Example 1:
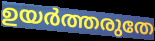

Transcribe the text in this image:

ഉയർത്തരുതേ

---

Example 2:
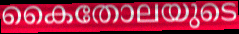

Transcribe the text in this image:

കൈതോലയുടെ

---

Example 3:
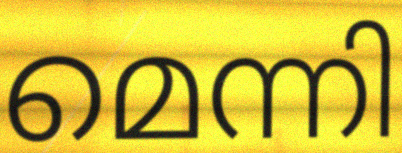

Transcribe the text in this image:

മെന്നി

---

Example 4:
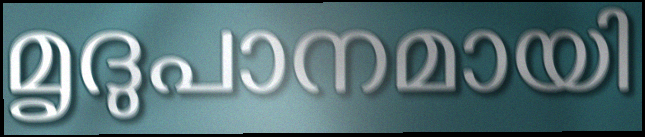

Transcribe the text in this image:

മൃദുപാനമായി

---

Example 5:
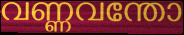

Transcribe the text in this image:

വണ്ണവന്തോ